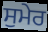
ਸੁਮੇਰ